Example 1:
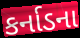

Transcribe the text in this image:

કર્નાડના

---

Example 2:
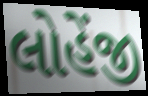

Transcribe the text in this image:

લોહેંજી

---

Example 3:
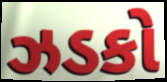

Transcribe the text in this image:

ઝડકો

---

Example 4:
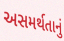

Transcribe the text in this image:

અસમર્થતાનું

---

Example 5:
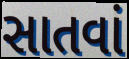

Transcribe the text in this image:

સાતવાં